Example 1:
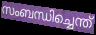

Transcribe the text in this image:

സംബന്ധിച്ചെന്ത്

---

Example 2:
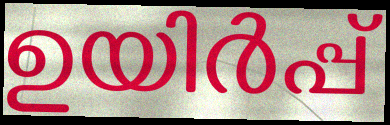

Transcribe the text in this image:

ഉയിർപ്പ്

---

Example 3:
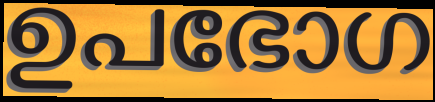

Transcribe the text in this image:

ഉപഭോഗ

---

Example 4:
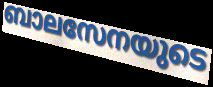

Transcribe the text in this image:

ബാലസേനയുടെ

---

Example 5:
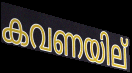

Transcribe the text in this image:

കവണയില്